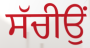
ਸੱਚੀਉਂ